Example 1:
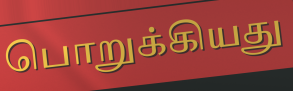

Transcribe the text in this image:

பொறுக்கியது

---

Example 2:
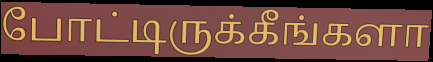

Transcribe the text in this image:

போட்டிருக்கீங்களா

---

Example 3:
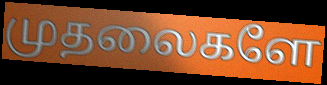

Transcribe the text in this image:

முதலைகளே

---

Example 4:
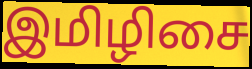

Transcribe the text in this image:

இமிழிசை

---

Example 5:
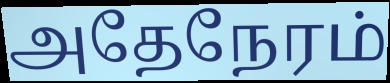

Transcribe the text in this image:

அதேநேரம்